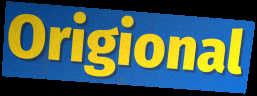
Origional